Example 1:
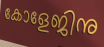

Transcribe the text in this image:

കോളേജിനു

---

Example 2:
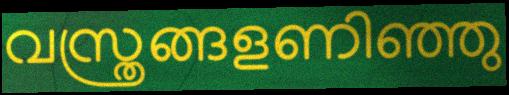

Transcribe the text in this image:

വസ്ത്രങ്ങളണിഞ്ഞു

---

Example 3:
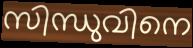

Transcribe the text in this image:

സിന്ധുവിനെ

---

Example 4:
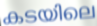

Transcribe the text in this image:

കടയിലെ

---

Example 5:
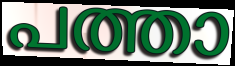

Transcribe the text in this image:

പത്താ